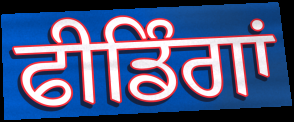
ਫੀਡਿੰਗਾਂ